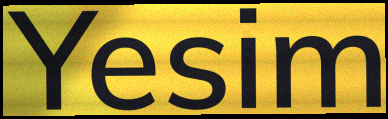
Yesim